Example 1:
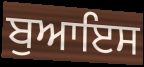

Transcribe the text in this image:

ਬੁਆਇਸ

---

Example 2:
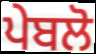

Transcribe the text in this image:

ਪੇਬਲੋ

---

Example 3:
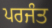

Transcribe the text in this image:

ਪਰਜੰਤ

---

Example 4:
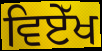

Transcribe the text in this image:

ਵਿਏੱਖ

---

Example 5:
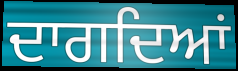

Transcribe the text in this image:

ਦਾਗਦਿਆਂ